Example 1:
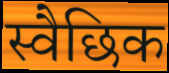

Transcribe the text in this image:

स्वैछिक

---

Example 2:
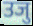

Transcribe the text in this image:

उजु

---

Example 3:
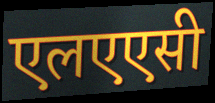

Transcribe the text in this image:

एलएएसी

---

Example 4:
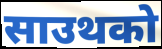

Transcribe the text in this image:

साउथको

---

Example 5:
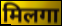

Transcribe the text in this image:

मिलगा